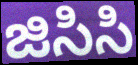
జిసిసి